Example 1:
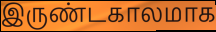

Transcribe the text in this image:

இருண்டகாலமாக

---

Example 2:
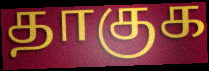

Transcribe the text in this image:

தாகுக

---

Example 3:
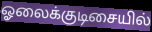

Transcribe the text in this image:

ஓலைக்குடிசையில்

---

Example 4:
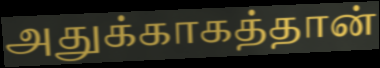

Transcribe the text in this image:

அதுக்காகத்தான்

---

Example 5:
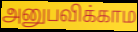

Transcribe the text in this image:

அனுபவிக்காம